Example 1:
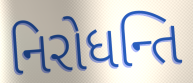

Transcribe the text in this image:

નિરોધન્તિ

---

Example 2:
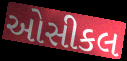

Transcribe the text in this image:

ઓસીકલ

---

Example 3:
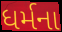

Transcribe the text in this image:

ધર્મના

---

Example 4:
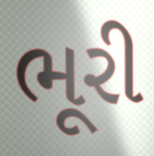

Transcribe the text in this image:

ભૂરી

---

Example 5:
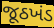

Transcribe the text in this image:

જૂઠખંડ